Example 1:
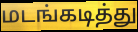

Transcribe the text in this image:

மடங்கடித்து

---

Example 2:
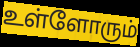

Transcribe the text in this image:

உள்ளோரும்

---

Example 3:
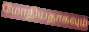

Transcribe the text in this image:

மோதியதாகவும்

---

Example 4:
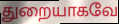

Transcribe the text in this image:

துறையாகவே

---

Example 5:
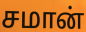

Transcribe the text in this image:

சமான்